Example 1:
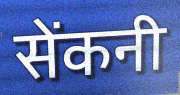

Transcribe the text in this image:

सेंकनी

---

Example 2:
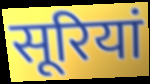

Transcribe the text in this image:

सूरियां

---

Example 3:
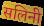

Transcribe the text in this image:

सलिनी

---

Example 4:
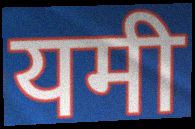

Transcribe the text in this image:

यमी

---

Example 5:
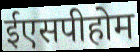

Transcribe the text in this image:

ईएसपीहोम